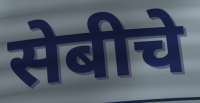
सेबीचे